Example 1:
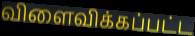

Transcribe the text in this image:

விளைவிக்கப்பட்ட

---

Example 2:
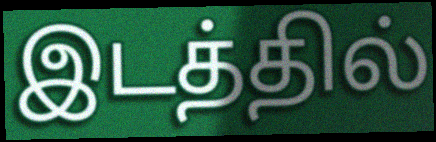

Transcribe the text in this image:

இடத்தில்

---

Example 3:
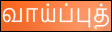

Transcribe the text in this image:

வாய்ப்புத்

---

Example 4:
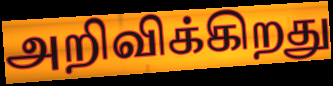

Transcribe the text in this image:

அறிவிக்கிறது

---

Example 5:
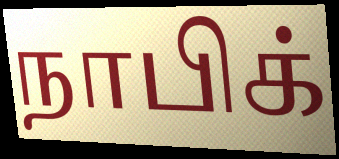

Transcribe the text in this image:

நாபிக்